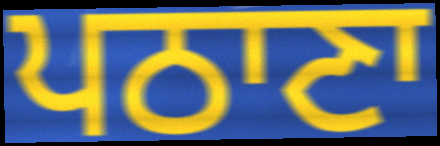
ਪਠਾਣਾ